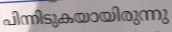
പിന്നിടുകയായിരുന്നു